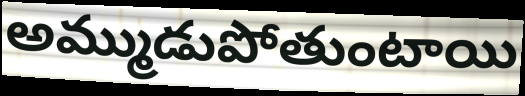
అమ్ముడుపోతుంటాయి